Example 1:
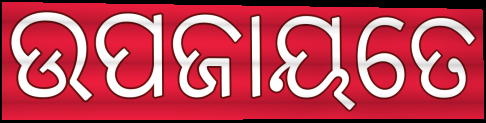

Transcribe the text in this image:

ଉପଜାୟତେ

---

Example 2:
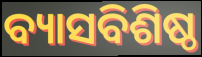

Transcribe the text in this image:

ବ୍ୟାସବିଶିଷ୍ଠ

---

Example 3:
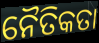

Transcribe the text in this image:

ନୈତିକତା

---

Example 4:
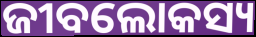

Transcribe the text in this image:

ଜୀବଲୋକସ୍ୟ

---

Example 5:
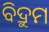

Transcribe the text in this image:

ବିଦ୍ରୁମ